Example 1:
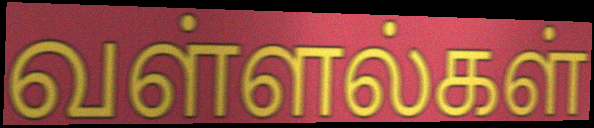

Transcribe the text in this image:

வள்ளல்கள்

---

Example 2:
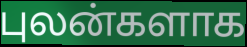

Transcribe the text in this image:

புலன்களாக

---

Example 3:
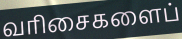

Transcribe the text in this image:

வரிசைகளைப்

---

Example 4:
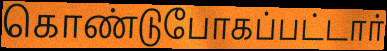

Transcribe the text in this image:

கொண்டுபோகப்பட்டார்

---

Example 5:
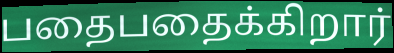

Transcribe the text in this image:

பதைபதைக்கிறார்